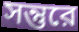
সন্তুরে